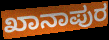
ಖಾನಾಪುರ